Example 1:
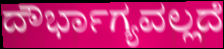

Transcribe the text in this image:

ದೌರ್ಭಾಗ್ಯವಲ್ಲದೆ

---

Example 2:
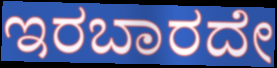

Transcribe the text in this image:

ಇರಬಾರದೇ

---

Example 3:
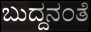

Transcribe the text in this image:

ಬುದ್ದನಂತೆ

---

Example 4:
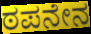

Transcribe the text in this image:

ಠಪನೇನ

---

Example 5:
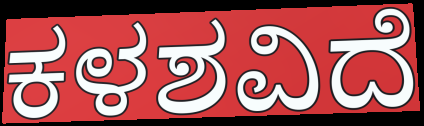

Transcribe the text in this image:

ಕಳಶವಿದೆ